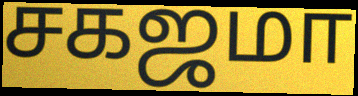
சகஜமா